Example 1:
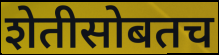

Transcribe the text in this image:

शेतीसोबतच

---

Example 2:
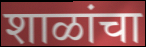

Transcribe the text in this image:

शाळांचा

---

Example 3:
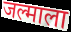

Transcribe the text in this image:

जल्माला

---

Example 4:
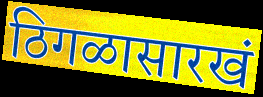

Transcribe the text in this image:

ठिगळासारखं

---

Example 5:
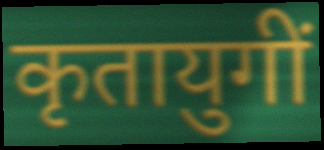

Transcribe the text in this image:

कृतायुगीं